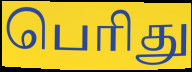
பெரிது